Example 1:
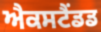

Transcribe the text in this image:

ਐਕਸਟੈਂਡਡ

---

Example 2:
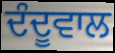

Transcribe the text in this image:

ਦੰਦੂਵਾਲ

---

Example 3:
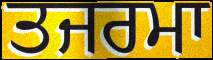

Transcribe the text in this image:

ਤਜਰਮਾ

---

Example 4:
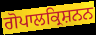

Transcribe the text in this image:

ਗੋਪਾਲਕ੍ਰਿਸ਼ਨਨ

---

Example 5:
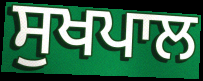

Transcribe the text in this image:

ਸੁਖਪਾਲ